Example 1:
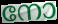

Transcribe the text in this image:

നോ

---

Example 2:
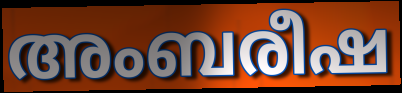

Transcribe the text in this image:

അംബരീഷ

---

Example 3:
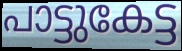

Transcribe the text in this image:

പാട്ടുകേട്ട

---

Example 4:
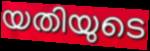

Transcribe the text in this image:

യതിയുടെ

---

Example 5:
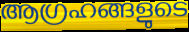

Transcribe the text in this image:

ആഗ്രഹങ്ങളുടെ